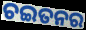
ଚଇତନର